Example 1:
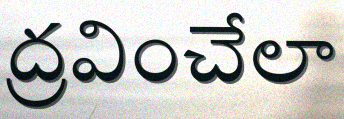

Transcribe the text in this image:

ద్రవించేలా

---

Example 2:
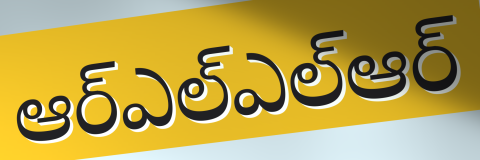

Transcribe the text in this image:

ఆర్ఎల్ఎల్ఆర్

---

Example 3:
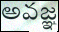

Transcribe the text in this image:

అవజ్ఞ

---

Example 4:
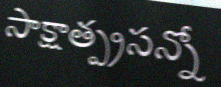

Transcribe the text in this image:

సాక్షాత్ప్రసన్నో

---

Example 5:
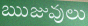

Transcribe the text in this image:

ఋజువులు